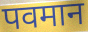
पवमान